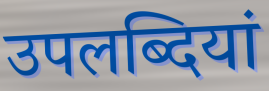
उपलब्दियां